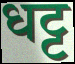
धट्ट